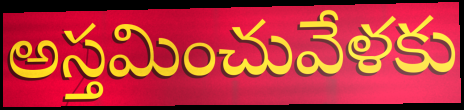
అస్తమించువేళకు